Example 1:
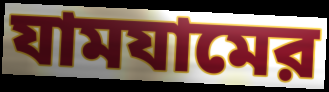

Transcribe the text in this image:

যামযামের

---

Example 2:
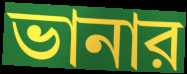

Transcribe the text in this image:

ভানার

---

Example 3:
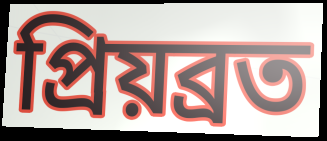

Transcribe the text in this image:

প্রিয়ব্রত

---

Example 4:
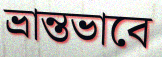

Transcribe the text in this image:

ভ্রান্তভাবে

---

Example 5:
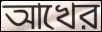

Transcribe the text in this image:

আখের